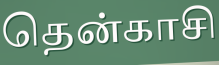
தென்காசி